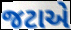
જટાએ